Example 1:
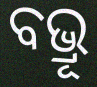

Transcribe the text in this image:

ବଭ୍ରୂ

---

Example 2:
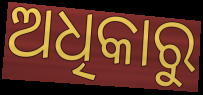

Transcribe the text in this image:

ଅଧିକାରୁ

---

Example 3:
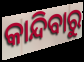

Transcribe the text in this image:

କାନ୍ଦିବାରୁ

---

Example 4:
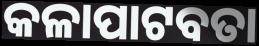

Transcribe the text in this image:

କଳାପାଟବତା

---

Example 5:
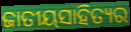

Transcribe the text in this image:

ଜାତୀୟସାହିତ୍ୟର